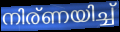
നിര്ണയിച്ച്